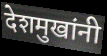
देशमुखांनी